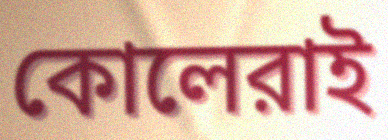
কোলেরাই